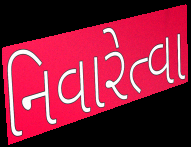
નિવારેત્વા